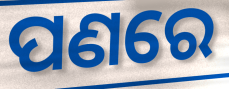
ପଣରେ